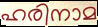
ഹരിനാമ